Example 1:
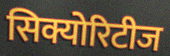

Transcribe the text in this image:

सिक्योरिटीज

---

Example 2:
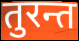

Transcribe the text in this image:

तुरन्त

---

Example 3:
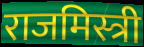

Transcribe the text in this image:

राजमिस्त्री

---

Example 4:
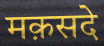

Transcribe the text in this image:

मक़सदे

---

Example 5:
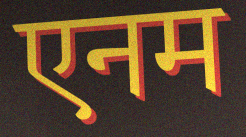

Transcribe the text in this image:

एनम